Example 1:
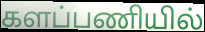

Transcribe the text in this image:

களப்பணியில்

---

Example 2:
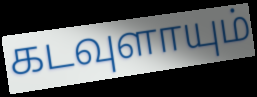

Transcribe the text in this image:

கடவுளாயும்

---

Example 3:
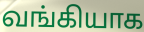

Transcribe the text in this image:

வங்கியாக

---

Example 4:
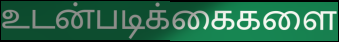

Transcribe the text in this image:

உடன்படிக்கைகளை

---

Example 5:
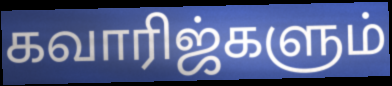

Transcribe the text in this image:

கவாரிஜ்களும்